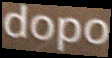
dopo